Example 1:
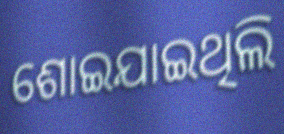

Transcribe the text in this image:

ଶୋଇଯାଇଥିଲି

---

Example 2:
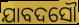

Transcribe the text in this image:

ଯାବଦସୌ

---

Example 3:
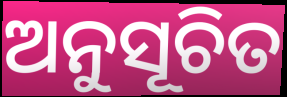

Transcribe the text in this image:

ଅନୁସୂଚିତ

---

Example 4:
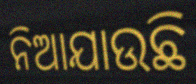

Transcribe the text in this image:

ନିଆଯାଉଛି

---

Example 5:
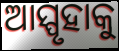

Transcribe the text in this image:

ଆସ୍ପୃହାକୁ